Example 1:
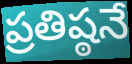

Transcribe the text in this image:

ప్రతిష్ఠనే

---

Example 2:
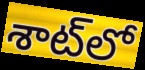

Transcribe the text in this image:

శాట్‌లో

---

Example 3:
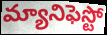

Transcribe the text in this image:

మ్యానిఫెస్టో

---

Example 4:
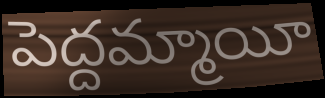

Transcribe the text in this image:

పెద్దమ్మాయీ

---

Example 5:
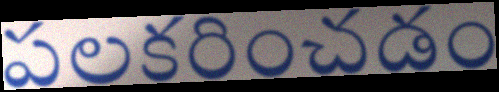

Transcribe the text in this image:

పలకరించడం